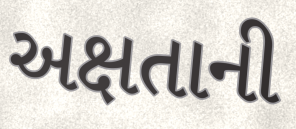
અક્ષતાની